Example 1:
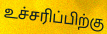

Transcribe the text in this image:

உச்சரிப்பிற்கு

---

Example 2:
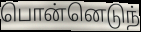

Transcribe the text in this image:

பொன்னெடுந்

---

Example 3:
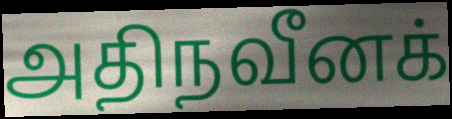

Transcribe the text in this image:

அதிநவீனக்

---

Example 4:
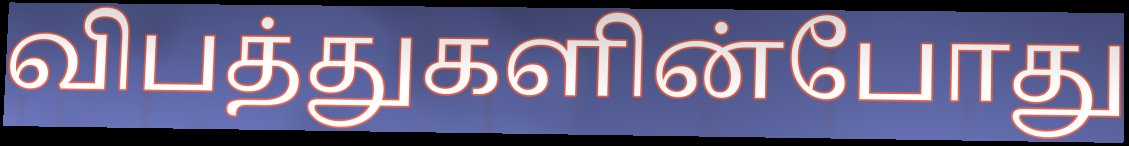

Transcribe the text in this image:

விபத்துகளின்போது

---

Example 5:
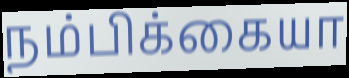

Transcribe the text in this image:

நம்பிக்கையா